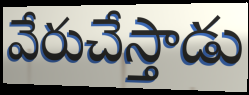
వేరుచేస్తాడు